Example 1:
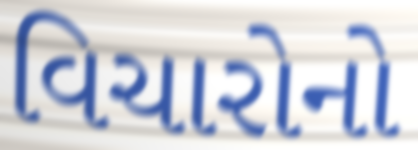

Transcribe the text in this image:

વિચારોનો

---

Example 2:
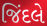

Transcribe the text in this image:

જિંદલે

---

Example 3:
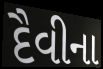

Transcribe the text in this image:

દૈવીના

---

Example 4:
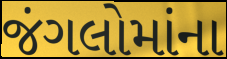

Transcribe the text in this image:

જંગલોમાંના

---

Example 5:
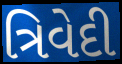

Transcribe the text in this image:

ત્રિવેદી